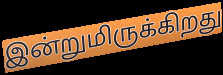
இன்றுமிருக்கிறது